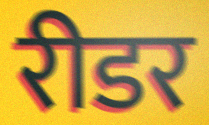
रीडर